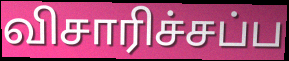
விசாரிச்சப்ப